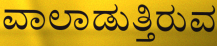
ವಾಲಾಡುತ್ತಿರುವ